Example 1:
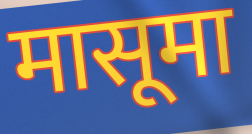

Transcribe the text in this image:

मासूमा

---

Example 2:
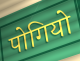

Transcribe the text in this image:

पोगियो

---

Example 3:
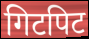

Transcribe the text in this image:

गिटपिट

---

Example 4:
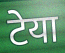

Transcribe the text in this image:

टेया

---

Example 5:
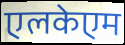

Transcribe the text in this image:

एलकेएम